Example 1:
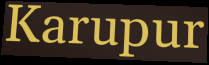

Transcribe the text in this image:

Karupur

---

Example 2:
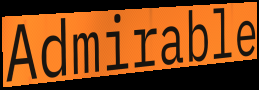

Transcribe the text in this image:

Admirable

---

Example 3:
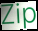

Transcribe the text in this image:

Zip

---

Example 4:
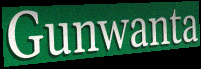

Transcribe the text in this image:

Gunwanta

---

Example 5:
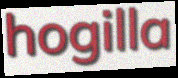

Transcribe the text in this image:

hogilla